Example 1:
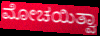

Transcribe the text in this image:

ಮೋಚಯಿತ್ವಾ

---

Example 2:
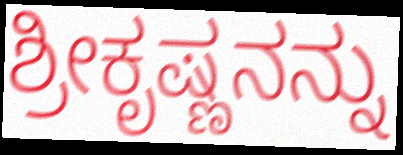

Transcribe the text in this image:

ಶ್ರೀಕೃಷ್ಣನನ್ನು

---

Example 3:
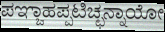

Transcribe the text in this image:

ಪಞ್ಚಾಹಪ್ಪಟಿಚ್ಛನ್ನಾಯೋ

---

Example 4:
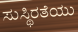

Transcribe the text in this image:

ಸುಸ್ಥಿರತೆಯು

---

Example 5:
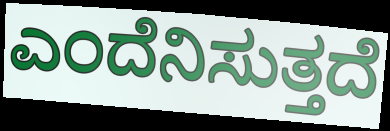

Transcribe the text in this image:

ಎಂದೆನಿಸುತ್ತದೆ